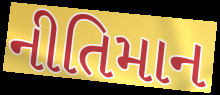
નીતિમાન